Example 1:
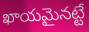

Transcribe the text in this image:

ఖాయమైనట్టే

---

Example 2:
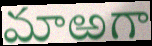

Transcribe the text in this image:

మాఱగా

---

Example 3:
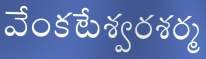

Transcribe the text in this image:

వేంకటేశ్వరశర్మ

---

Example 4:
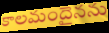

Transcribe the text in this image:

కాలమందైనను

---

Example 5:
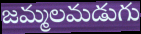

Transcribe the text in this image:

జమ్మలమడుగు